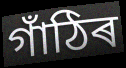
গাঁঠিৰ